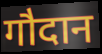
गौदान